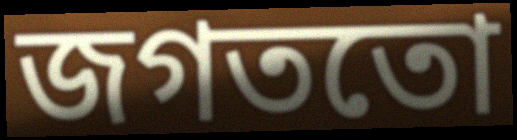
জগততো